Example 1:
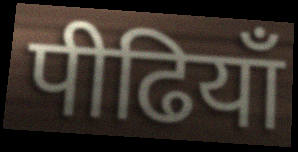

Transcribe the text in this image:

पीढियाँ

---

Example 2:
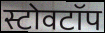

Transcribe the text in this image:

स्टोवटॉप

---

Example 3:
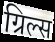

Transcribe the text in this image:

ग्रिल्स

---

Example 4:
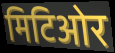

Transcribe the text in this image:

मिटिओर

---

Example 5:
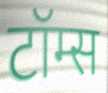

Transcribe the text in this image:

टॉम्स